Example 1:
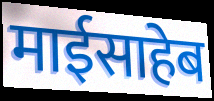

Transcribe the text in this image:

माईसाहेब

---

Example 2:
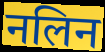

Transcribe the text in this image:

नलिन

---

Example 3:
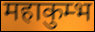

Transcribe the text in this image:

महाकुम्भ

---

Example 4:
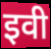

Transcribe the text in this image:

इवी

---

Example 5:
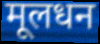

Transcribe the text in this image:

मूलधन